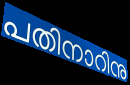
പതിനാറിനു